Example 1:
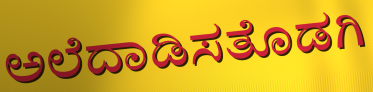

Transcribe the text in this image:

ಅಲೆದಾಡಿಸತೊಡಗಿ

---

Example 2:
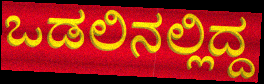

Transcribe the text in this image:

ಒಡಲಿನಲ್ಲಿದ್ದ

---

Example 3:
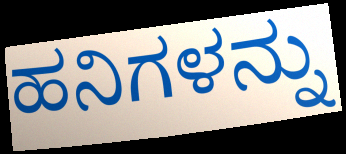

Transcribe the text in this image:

ಹನಿಗಳನ್ನು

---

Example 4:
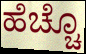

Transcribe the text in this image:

ಹೆಚ್ಚೊ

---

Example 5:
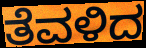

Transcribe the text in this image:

ತೆವಳಿದ